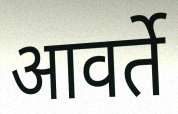
आवर्ते